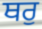
ਥਰੁ